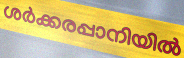
ശർക്കരപ്പാനിയിൽ